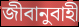
জীবানুবাহী